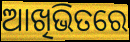
ଆଖିଭିତରେ